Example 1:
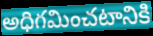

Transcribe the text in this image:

అధిగమించటానికి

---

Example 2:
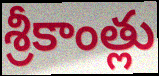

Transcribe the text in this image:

శ్రీకాంత్లు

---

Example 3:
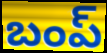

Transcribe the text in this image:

బంప్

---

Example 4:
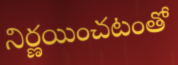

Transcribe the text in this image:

నిర్ణయించటంతో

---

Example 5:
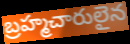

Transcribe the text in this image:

బ్రహ్మచారులైన